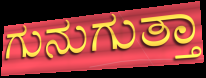
ಗುನುಗುತ್ತಾ